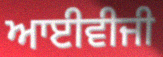
ਆਈਵੀਜੀ